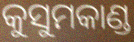
କୁସୁମକାଣ୍ଡ